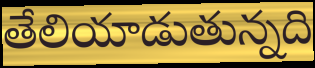
తేలియాడుతున్నది